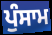
ਪੁੰਸਾਮ